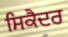
ਸਿਕੈਦਰ